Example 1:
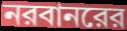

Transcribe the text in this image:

নরবানরের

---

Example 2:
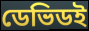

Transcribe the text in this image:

ডেভিডই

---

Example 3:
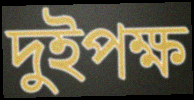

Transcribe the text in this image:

দুইপক্ষ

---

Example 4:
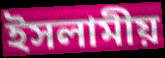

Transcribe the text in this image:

ইসলামীয়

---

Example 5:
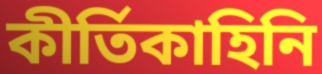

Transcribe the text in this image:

কীর্তিকাহিনি